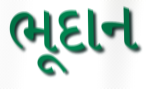
ભૂદાન